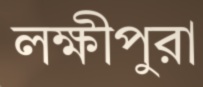
লক্ষীপুরা